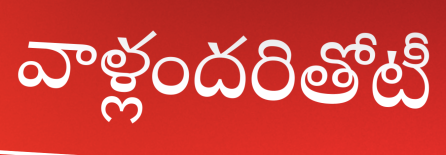
వాళ్లందరితోటీ